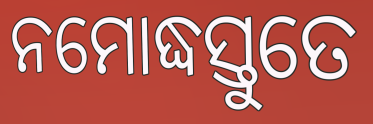
ନମୋଦ୍ଧସ୍ତୁତେ